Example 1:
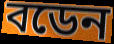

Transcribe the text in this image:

বডেন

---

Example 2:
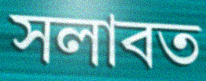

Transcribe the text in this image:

সলাবত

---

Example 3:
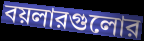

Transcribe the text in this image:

বয়লারগুলোর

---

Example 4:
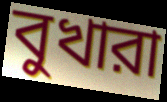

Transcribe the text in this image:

বুখারা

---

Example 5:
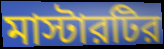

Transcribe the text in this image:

মাস্টারটির